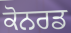
ਕੋਨਰਡ